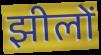
झीलों